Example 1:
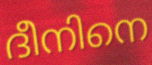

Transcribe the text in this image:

ദീനിനെ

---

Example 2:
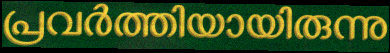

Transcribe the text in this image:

പ്രവർത്തിയായിരുന്നു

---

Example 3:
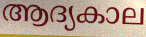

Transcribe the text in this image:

ആദ്യകാല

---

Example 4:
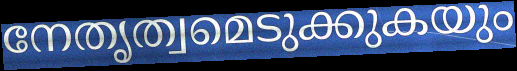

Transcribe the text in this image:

നേതൃത്വമെടുക്കുകയും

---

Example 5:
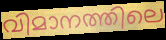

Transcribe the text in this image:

വിമാനത്തിലെ